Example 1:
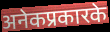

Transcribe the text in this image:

अनेकप्रकारके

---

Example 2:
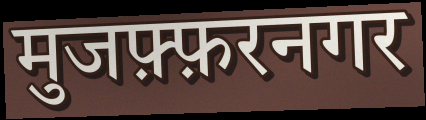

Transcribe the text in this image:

मुजफ़्फ़रनगर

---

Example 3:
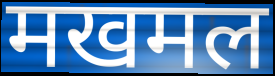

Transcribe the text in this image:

मखमल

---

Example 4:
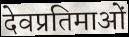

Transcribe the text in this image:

देवप्रतिमाओं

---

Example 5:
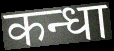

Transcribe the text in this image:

कन्धा